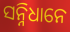
ସନ୍ନିଧାନେ